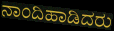
ನಾಂದಿಹಾಡಿದರು